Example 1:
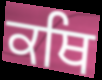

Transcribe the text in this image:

ਕਥਿ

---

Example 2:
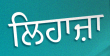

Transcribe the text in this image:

ਲਿਹਾਜ਼ਾ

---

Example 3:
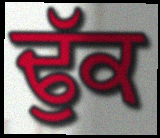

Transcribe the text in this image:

ਢੁੱਕ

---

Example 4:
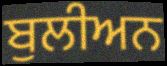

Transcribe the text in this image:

ਬੁਲੀਅਨ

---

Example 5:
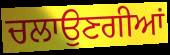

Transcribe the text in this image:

ਚਲਾਉਣਗੀਆਂ